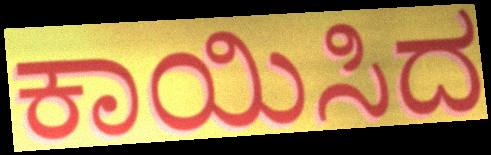
ಕಾಯಿಸಿದ